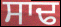
ਸਾਢ